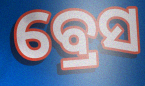
ବ୍ରେସ